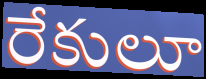
రేకులూ